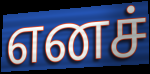
எனச்